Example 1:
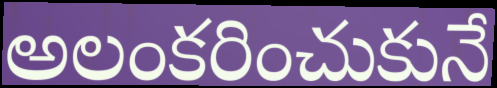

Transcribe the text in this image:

అలంకరించుకునే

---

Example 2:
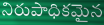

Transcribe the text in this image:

నిరుపాధికమైన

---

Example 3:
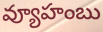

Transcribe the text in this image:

వ్యూహంబు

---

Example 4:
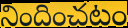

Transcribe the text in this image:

నిందించటం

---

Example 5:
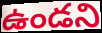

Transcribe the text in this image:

ఉండని